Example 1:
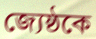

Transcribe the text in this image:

জ্যেষ্ঠকে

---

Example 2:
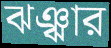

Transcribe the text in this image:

ঝঞ্ঝার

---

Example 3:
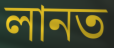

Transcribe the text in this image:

লানত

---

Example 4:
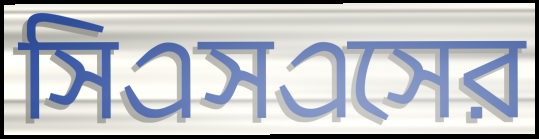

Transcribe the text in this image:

সিএসএসের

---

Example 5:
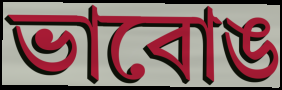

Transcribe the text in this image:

ভাবোঙ